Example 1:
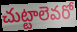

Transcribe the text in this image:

చుట్టాలెవరో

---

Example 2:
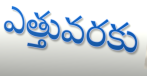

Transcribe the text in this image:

ఎత్తువరకు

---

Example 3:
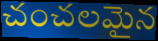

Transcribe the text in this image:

చంచలమైన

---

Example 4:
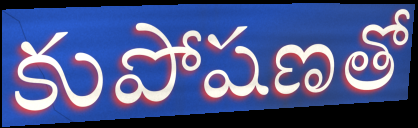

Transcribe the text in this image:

కుపోషణతో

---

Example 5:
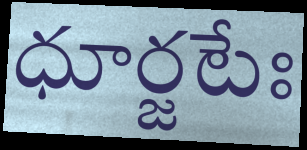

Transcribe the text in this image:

ధూర్జటేః